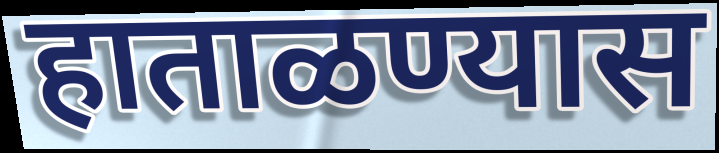
हाताळण्यास